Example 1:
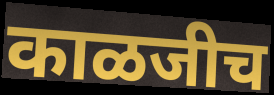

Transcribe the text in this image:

काळजीच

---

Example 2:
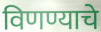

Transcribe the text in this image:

विणण्याचे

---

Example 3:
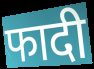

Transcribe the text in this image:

फादी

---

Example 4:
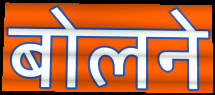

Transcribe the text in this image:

बोलने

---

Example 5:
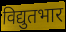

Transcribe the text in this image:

विद्युतभार